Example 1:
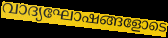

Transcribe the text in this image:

വാദ്യഘോഷങ്ങളോടെ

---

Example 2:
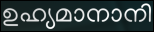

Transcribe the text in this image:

ഉഹ്യമാനാനി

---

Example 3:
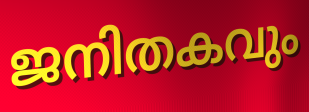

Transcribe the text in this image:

ജനിതകവും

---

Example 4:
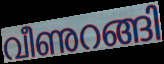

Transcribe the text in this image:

വീണുറങ്ങി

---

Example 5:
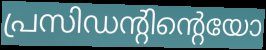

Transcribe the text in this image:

പ്രസിഡന്റിന്റെയോ